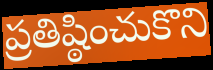
ప్రతిష్ఠించుకొని